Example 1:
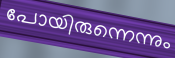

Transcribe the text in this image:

പോയിരുന്നെന്നും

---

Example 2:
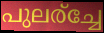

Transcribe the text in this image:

പുലര്ച്ചേ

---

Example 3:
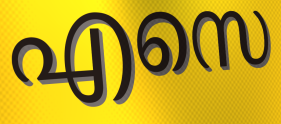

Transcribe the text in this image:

എസെ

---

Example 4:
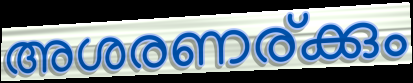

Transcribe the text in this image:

അശരണര്ക്കും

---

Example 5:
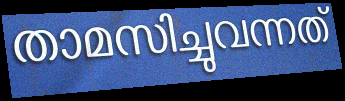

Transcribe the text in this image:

താമസിച്ചുവന്നത്